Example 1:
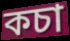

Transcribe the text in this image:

কচা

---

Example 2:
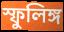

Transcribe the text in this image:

স্ফুলিঙ্গ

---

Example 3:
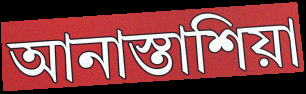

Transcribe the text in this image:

আনাস্তাশিয়া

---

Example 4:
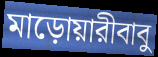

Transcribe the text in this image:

মাড়োয়ারীবাবু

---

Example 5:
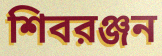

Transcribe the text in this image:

শিবরঞ্জন